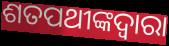
ଶତପଥୀଙ୍କଦ୍ୱାରା